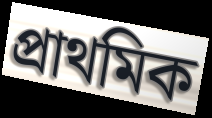
প্ৰাথমিক